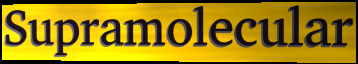
Supramolecular